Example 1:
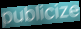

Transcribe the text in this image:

publicize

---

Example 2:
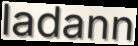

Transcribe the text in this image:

ladann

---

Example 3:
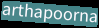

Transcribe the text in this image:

arthapoorna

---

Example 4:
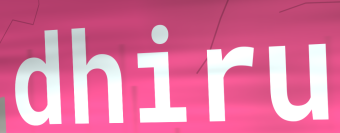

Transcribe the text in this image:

dhiru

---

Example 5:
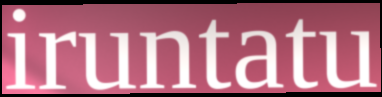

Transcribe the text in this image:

iruntatu